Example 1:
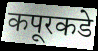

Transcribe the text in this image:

कपूरकडे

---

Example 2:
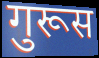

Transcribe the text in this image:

गुरूस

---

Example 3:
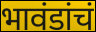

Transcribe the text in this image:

भावंडांचं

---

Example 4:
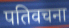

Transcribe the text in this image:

पतिवचना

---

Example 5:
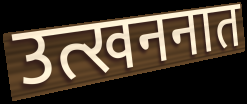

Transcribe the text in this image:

उत्खननात